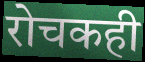
रोचकही